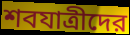
শবযাত্রীদের